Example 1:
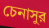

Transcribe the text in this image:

চেনাসুর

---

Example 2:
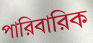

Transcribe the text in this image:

পারিবারিক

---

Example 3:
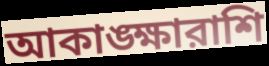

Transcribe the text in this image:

আকাঙ্ক্ষারাশি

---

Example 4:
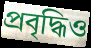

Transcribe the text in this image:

প্রবৃদ্ধিও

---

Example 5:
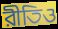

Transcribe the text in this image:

রীতিও